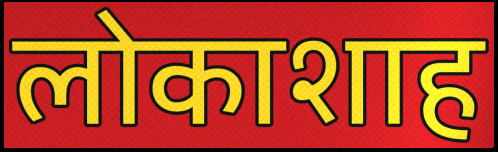
लोकाशाह